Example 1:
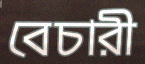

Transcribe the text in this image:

বেচারী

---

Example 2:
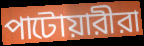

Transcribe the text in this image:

পাটোয়ারীরা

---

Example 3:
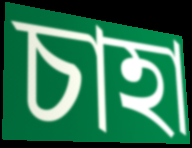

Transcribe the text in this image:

চাহা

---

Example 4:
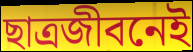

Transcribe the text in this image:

ছাত্রজীবনেই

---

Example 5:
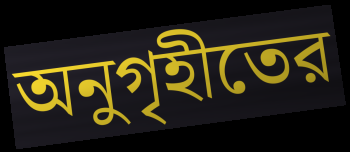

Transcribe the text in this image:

অনুগৃহীতের